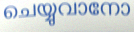
ചെയ്യുവാനോ